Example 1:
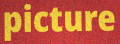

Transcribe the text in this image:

picture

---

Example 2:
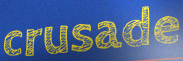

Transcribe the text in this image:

crusade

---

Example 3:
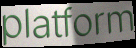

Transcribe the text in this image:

platform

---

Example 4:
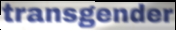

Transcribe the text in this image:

transgender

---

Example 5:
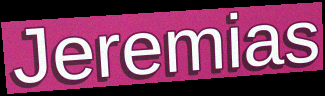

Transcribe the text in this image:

Jeremias